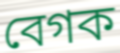
বেগক